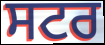
ਸਟਰ